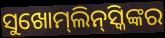
ସୁଖୋମ୍‍ଲିନ୍‍ସ୍କିଙ୍କର